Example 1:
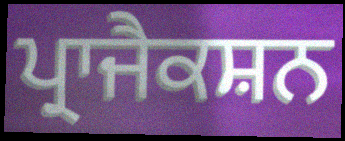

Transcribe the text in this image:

ਪ੍ਰਾਜੈਕਸ਼ਨ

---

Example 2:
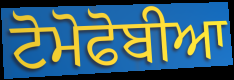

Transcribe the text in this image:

ਟੋਮੋਫੋਬੀਆ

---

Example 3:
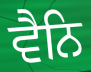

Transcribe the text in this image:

ਵੈਨਿ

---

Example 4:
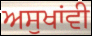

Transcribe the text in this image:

ਅਸੁਖਾਂਵੀ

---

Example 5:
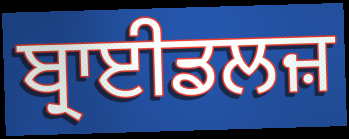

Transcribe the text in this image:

ਬ੍ਰਾਈਡਲਜ਼